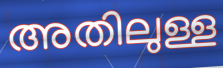
അതിലുള്ള